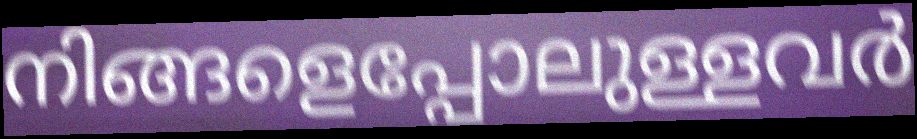
നിങ്ങളെപ്പോലുള്ളവർ